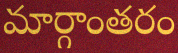
మార్గాంతరం